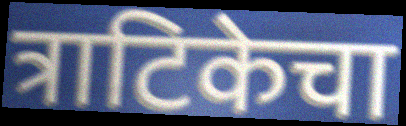
त्राटिकेचा